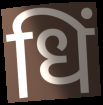
धिं